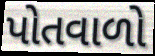
પોતવાળો